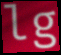
lg